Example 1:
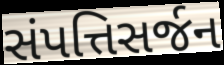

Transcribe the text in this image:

સંપત્તિસર્જન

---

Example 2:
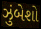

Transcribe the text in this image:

ઝુંબેશો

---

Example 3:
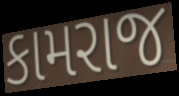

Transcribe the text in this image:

કામરાજ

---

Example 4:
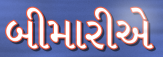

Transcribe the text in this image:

બીમારીએ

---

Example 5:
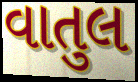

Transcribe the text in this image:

વાતુલ